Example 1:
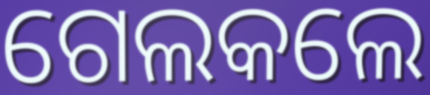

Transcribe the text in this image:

ଗେଲକଲେ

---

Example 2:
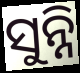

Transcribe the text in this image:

ସୁନ୍ନି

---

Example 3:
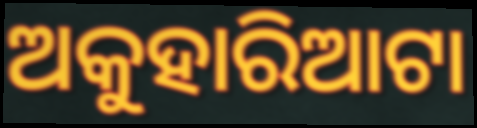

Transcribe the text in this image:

ଅକୁହାରିଆଟା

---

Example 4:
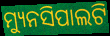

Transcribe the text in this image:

ମ୍ୟୁନସିପାଲଟି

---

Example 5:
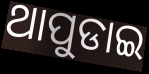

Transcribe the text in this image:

ଥାପୁଡାଇ